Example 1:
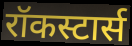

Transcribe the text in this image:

रॉकस्टार्स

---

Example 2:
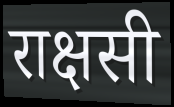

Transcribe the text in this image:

राक्षसी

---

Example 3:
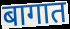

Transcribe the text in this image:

बागात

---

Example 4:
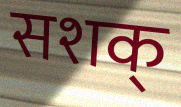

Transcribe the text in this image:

सशक्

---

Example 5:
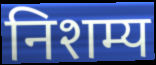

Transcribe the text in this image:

निशम्य